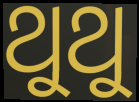
ଥୁଥୁ